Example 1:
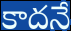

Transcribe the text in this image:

కాదనే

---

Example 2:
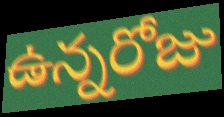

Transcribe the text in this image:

ఉన్నరోజు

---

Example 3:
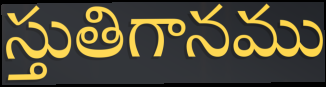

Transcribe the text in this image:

స్తుతిగానము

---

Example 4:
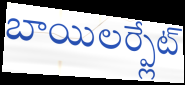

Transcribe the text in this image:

బాయిలర్ప్లేట్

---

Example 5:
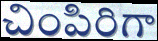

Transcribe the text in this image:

చింపిరిగా